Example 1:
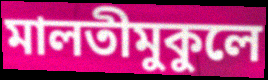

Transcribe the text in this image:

মালতীমুকুলে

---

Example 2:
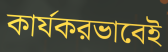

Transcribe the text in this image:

কার্যকরভাবেই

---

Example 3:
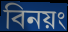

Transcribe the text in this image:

বিনয়ং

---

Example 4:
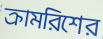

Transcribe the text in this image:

ক্রামরিশের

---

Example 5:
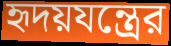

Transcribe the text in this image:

হৃদয়যন্ত্রের